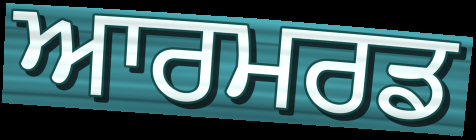
ਆਰਮਰਡ